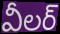
వీలర్